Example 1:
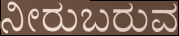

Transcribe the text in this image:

ನೀರುಬರುವ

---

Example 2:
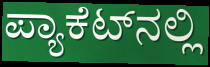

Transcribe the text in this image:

ಪ್ಯಾಕೆಟ್‍ನಲ್ಲಿ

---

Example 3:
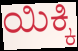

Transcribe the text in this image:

ಯಿಕ್ಕಿ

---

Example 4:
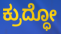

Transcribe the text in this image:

ಕ್ರುದ್ಧೋ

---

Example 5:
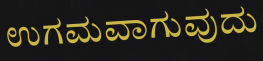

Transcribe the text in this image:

ಉಗಮವಾಗುವುದು